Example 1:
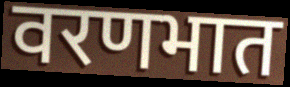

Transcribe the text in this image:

वरणभात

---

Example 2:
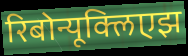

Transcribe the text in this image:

रिबोन्यूक्लिएझ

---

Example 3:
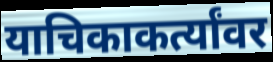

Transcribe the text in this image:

याचिकाकर्त्यांवर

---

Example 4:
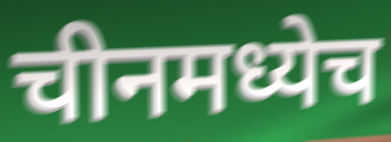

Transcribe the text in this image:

चीनमध्येच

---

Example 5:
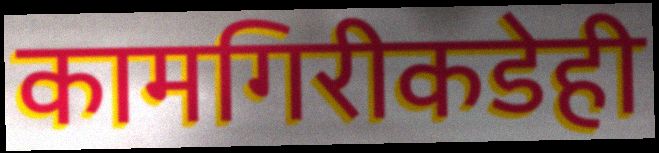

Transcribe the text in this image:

कामगिरीकडेही